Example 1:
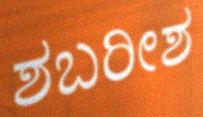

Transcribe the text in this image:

ಶಬರೀಶ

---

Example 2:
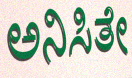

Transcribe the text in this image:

ಅನಿಸಿತೇ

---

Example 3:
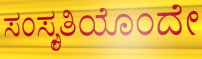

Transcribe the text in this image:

ಸಂಸ್ಕೃತಿಯೊಂದೇ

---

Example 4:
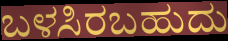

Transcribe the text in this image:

ಬಳಸಿರಬಹುದು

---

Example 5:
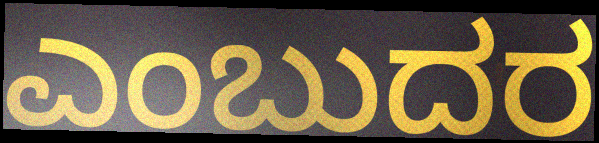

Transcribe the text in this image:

ಎಂಬುದರ